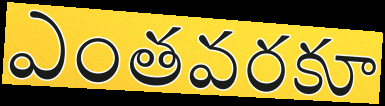
ఎంతవరకూ